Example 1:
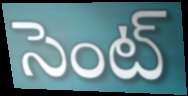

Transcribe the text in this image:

సెంట్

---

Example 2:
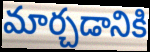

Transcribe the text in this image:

మార్చడానికి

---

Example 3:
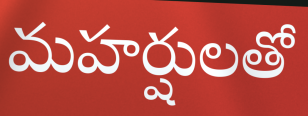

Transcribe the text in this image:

మహర్షులతో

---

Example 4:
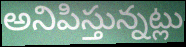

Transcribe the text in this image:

అనిపిస్తున్నట్లు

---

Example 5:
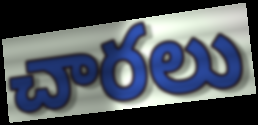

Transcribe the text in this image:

చారలు